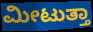
ಮೀಟುತ್ತಾ